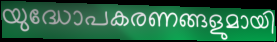
യുദ്ധോപകരണങ്ങളുമായി